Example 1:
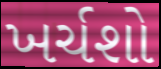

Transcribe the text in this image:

ખર્ચશો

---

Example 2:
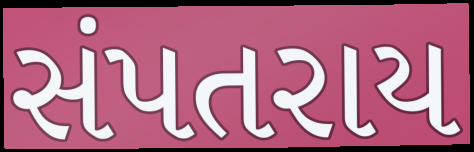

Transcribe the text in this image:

સંપતરાય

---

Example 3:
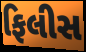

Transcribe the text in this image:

ફિલીસ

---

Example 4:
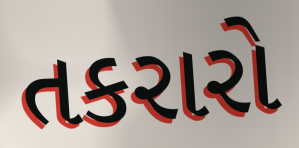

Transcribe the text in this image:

તકરારો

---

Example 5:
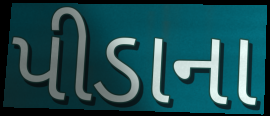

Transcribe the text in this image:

પીડાના